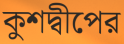
কুশদ্বীপের